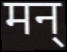
मन्